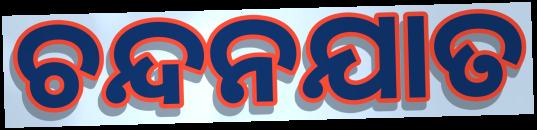
ଚନ୍ଦନଯାତ